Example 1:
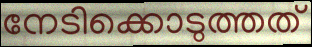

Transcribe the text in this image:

നേടിക്കൊടുത്തത്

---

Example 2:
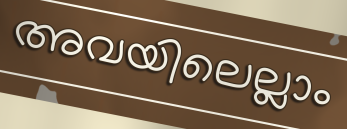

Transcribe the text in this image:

അവയിലെല്ലാം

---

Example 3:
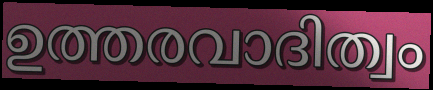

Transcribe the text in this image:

ഉത്തരവാദിത്വം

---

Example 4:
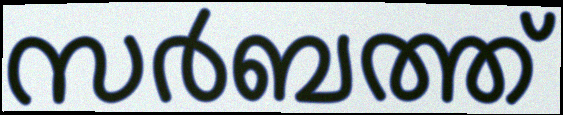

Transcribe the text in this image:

സർബത്ത്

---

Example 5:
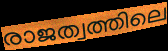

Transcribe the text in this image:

രാജത്വത്തിലെ